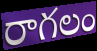
రాగలం